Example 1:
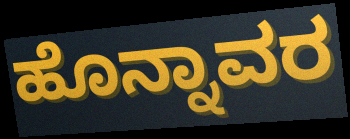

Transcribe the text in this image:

ಹೊನ್ನಾವರ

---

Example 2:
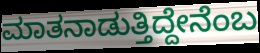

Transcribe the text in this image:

ಮಾತನಾಡುತ್ತಿದ್ದೇನೆಂಬ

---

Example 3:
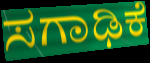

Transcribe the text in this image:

ಸಗಾಢಿಕೆ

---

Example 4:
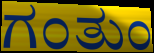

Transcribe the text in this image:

ಗಂತುಂ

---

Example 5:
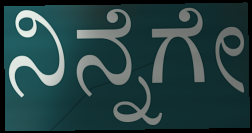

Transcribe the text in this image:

ನಿನ್ನೆಗೇ